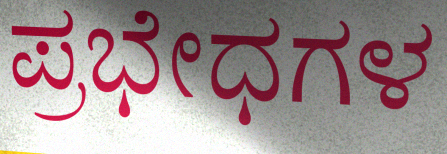
ಪ್ರಭೇಧಗಳ